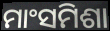
ମାଂସମିଶା